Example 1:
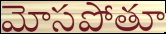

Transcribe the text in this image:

మోసపోతూ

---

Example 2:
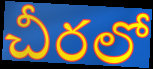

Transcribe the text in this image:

చీరలో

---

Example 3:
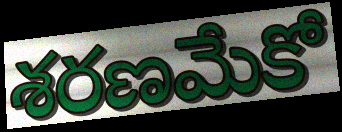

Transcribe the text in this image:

శరణమేకో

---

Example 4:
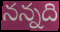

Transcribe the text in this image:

నన్నది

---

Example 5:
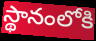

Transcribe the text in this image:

స్థానంలోకి